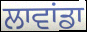
ਲਾਵਾਂਡਾ